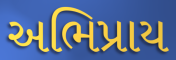
અભિપ્રાય